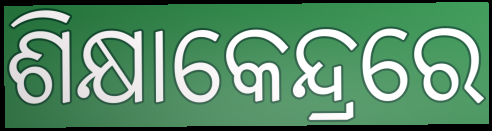
ଶିକ୍ଷାକେନ୍ଦ୍ରରେ